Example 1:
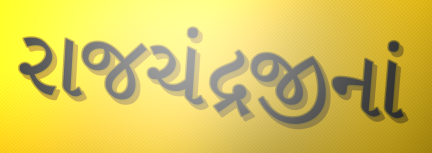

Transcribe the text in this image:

રાજચંદ્રજીનાં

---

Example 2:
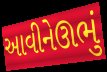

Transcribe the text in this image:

આવીનેઊભું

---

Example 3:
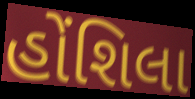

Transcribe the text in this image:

હોંશિલા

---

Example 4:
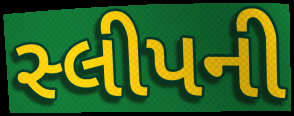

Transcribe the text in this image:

સ્લીપની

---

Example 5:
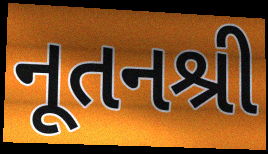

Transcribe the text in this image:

નૂતનશ્રી